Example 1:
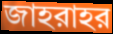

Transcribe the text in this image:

জাহরাহর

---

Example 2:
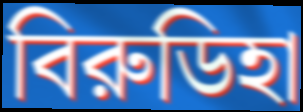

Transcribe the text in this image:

বিরুডিহা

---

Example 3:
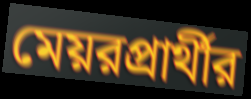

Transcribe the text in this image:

মেয়রপ্রার্থীর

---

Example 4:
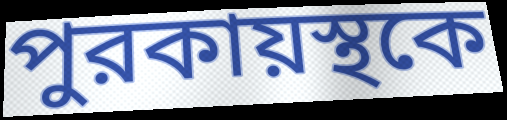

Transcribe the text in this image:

পুরকায়স্থকে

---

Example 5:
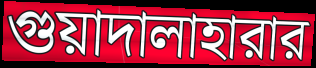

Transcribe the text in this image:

গুয়াদালাহারার